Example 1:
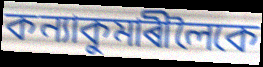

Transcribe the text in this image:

কন্যাকুমাৰীলৈকে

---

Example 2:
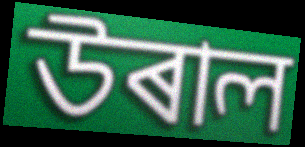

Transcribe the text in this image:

উৰাল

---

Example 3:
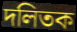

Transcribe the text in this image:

দলিতক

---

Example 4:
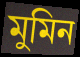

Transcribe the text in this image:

মুমিন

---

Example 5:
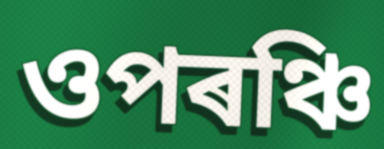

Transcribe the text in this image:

ওপৰঞ্চি